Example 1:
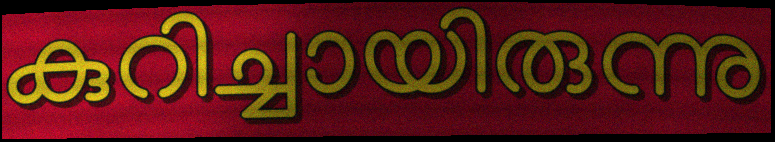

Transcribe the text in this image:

കുറിച്ചായിരുന്നു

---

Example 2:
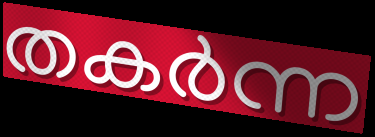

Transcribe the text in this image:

തകർന്ന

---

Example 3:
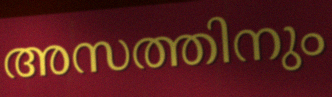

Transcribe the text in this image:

അസത്തിനും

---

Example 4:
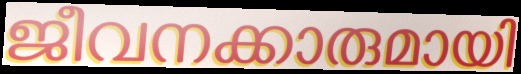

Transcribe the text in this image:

ജീവനക്കാരുമായി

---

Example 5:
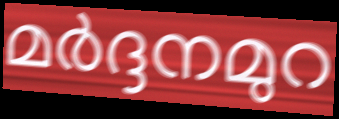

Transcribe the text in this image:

മർദ്ദനമുറ